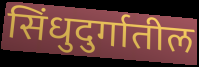
सिंधुदुर्गातील